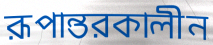
রূপান্তরকালীন